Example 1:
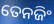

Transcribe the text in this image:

ତେନଜିଂ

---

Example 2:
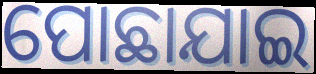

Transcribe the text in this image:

ପୋଛାଯାଇ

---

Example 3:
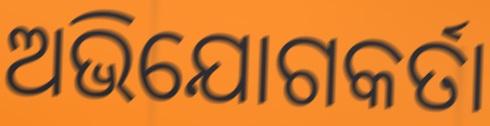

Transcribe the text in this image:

ଅଭିଯୋଗକର୍ତା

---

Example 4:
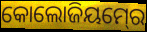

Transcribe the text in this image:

କୋଲୋଜିୟମ୍‍ରେ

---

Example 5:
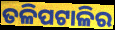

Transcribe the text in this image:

ତଳିପଟାଳିର